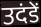
उदंडें